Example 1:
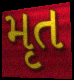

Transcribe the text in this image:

મૃત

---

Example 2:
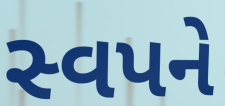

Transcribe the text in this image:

સ્વપને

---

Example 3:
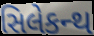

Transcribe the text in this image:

સિલેકન્થ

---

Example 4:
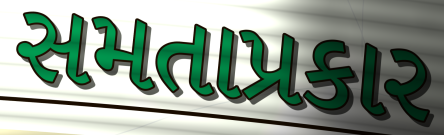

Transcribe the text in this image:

સમતાપ્રકાર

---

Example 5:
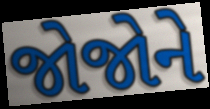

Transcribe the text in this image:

જોજોને